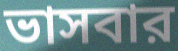
ভাসবার